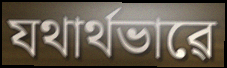
যথাৰ্থভাৱে